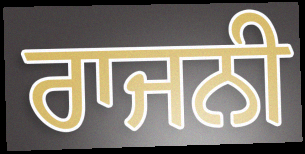
ਰਾਜਨੀ